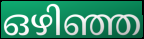
ഒഴിഞ്ഞ